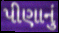
પીણાનું